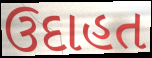
ઉદાહત